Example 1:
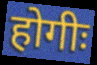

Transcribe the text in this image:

होगीः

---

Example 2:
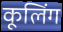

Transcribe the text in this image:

कूलिंग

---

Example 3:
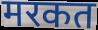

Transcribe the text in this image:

मरकत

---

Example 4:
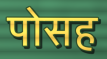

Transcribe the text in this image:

पोसह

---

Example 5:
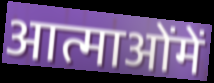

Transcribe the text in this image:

आत्माओंमें